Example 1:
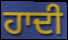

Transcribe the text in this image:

ਹਾਦੀ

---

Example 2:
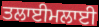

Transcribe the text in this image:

ਤਲਾਈਮਲਾਈ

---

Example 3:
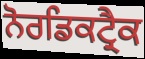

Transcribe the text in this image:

ਨੋਰਡਿਕਟ੍ਰੈਕ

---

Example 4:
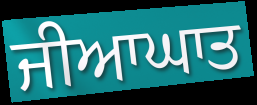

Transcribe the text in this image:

ਜੀਆਘਾਤ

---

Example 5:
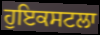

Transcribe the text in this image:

ਹੁਇਕਸਟਲਾ